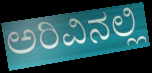
ಅರಿವಿನಲ್ಲಿ